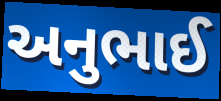
અનુભાઈ